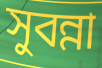
সুবন্না